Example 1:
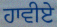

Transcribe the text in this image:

ਹਾਵੀਏ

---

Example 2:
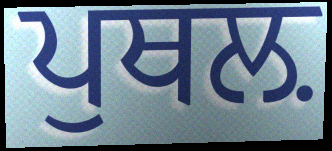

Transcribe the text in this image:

ਪੁਥਲ਼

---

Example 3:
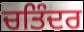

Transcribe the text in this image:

ਚਤਿੰਦਰ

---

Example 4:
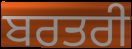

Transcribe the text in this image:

ਬਰਤਰੀ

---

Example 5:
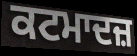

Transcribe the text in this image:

ਕਟਮਾਦਜ਼